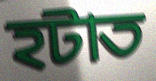
হটাত